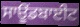
ਸਾਊਂਡਬਾਈਟ